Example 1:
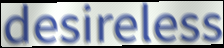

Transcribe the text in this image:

desireless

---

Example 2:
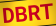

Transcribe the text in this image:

DBRT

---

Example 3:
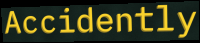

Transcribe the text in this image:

Accidently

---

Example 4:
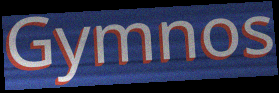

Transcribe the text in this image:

Gymnos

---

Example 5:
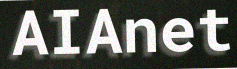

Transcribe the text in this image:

AIAnet